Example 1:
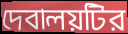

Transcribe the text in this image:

দেবালয়টির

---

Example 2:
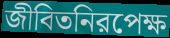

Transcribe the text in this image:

জীবিতনিরপেক্ষ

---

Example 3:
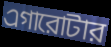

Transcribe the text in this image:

এগারোটার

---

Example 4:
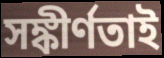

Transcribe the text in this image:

সঙ্কীর্ণতাই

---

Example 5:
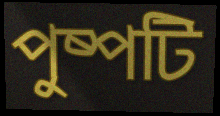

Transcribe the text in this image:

পুষ্পটি